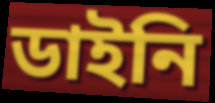
ডাইনি